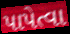
પાપેત્વા